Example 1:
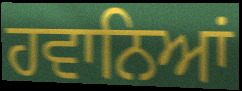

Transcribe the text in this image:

ਹਵਾਨਿਆਂ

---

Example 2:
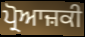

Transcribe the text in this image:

ਪ੍ਰੋਆਜ਼ਕੀ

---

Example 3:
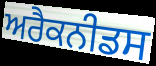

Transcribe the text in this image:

ਅਰੈਕਨੀਡਸ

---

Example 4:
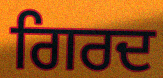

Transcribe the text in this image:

ਗਿਰਦ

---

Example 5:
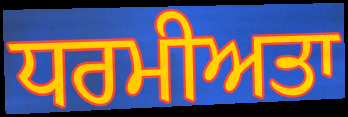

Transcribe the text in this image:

ਧਰਮੀਅਤਾ